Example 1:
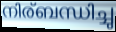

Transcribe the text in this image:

നിര്ബന്ധിച്ചു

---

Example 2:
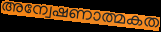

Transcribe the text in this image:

അന്വേഷണാത്മകത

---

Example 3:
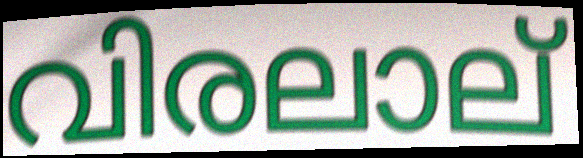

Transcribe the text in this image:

വിരലാല്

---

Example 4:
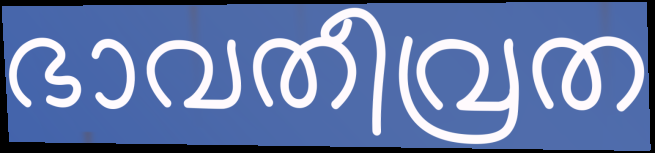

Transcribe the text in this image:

ഭാവതീവ്രത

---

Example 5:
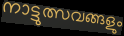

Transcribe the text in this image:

നാട്ടുത്സവങ്ങളും